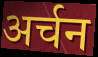
अर्चन